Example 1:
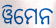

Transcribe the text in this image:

ୱିମେନ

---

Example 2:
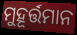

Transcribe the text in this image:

ମୁହୂର୍ତ୍ତମାନ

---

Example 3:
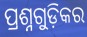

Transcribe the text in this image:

ପ୍ରଶ୍ନଗୁଡ଼ିକର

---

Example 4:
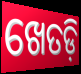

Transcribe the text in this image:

ଖେତଡ଼ି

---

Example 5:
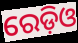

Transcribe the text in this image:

ରେଡ଼ିଓ